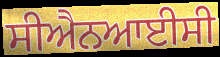
ਸੀਐਨਆਈਸੀ